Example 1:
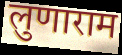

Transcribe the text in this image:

लुणाराम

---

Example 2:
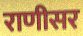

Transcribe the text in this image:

राणीसर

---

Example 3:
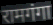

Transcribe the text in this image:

रामगंगा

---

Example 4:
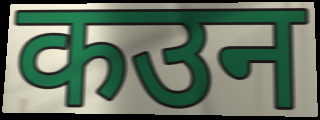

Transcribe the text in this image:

कउन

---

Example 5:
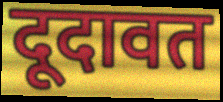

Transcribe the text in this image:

दूदावत